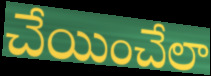
చేయించేలా